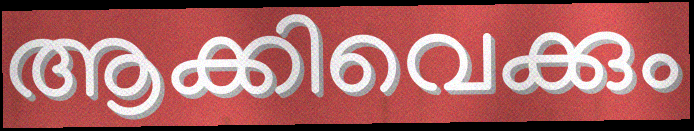
ആക്കിവെക്കും